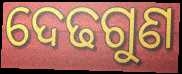
ଦେଢଗୁଣ